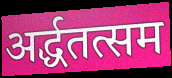
अर्द्धतत्सम